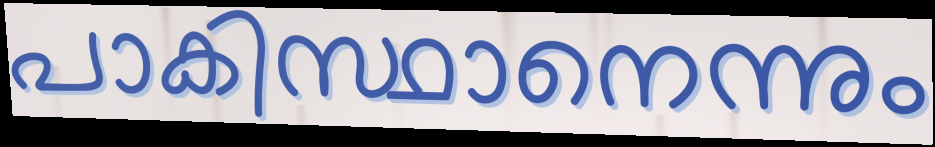
പാകിസ്ഥാനെന്നും